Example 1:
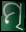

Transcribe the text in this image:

ତ୍ମ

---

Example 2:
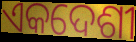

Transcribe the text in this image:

ଏକଦେଶୀ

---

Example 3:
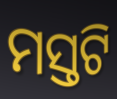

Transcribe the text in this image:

ମସ୍ତଟି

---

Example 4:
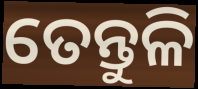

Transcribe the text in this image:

ତେନ୍ତୁଳି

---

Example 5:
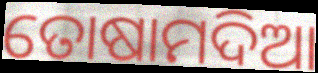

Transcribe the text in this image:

ତୋଷାମଦିଆ